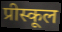
प्रीस्कूल